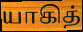
யாகித்